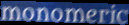
monomeric